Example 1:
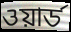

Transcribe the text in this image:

ওয়ার্ড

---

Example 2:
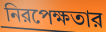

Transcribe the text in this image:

নিরপেক্ষতার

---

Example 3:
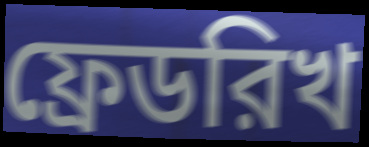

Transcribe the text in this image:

ফ্রেডরিখ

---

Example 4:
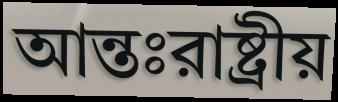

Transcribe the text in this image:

আন্তঃরাষ্ট্রীয়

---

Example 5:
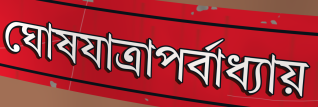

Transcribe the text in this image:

ঘোষযাত্রাপর্বাধ্যায়